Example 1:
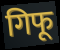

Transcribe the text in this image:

गिफू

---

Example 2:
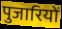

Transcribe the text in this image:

पुजारियों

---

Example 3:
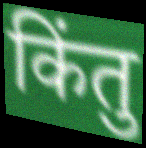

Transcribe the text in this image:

किंतु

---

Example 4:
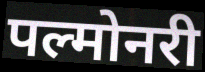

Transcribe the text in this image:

पल्मोनरी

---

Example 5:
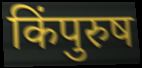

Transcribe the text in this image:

किंपुरुष